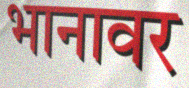
भानावर